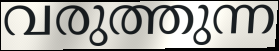
വരുത്തുന്ന